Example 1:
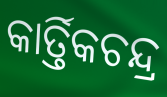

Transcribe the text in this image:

କାର୍ତ୍ତିକଚନ୍ଦ୍ର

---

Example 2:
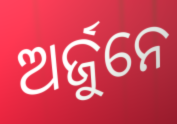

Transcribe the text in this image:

ଅର୍ଜୁନେ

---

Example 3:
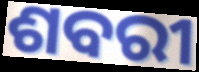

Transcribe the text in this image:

ଶବରୀ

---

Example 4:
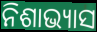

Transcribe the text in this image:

ନିଶାଭ୍ୟାସ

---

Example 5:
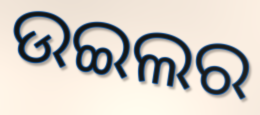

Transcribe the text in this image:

ଉଇଲର